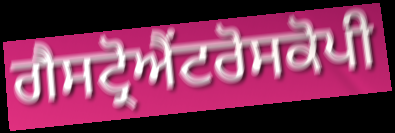
ਗੈਸਟ੍ਰੋਐਂਟਰੋਸਕੋਪੀ